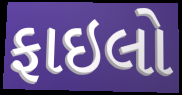
ફાઇલો